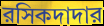
রসিকদাদার